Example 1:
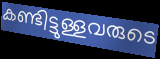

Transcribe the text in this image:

കണ്ടിട്ടുള്ളവരുടെ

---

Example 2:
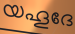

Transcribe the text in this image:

യഹൂദേ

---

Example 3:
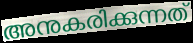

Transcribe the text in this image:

അനുകരിക്കുന്നത്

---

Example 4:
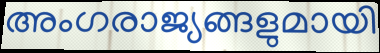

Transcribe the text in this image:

അംഗരാജ്യങ്ങളുമായി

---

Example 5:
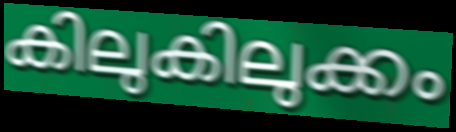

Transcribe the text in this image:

കിലുകിലുക്കം